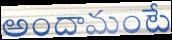
అందామంటే